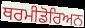
ਥਰਮੀਡੋਰਿਅਨ